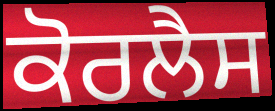
ਕੋਰਲੈਸ